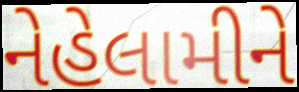
નેહેલામીને